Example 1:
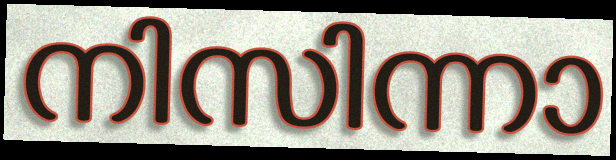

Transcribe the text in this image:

നിസിന്നാ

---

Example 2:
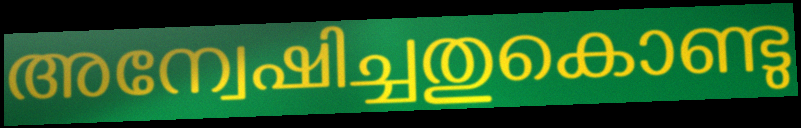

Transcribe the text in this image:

അന്വേഷിച്ചതുകൊണ്ടു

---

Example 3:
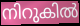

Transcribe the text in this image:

നിറുകിൽ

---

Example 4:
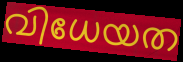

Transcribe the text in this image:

വിധേയത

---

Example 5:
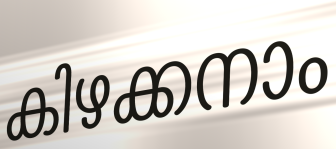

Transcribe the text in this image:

കിഴക്കനാം